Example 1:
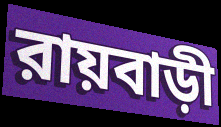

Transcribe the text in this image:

রায়বাড়ী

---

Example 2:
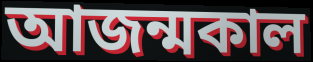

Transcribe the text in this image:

আজন্মকাল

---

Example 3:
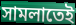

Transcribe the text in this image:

সামলাতেই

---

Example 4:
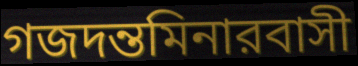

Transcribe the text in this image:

গজদন্তমিনারবাসী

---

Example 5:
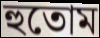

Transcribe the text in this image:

হুতোম